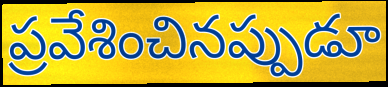
ప్రవేశించినప్పుడూ